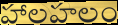
హాలహలం